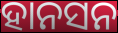
ହାନସନ